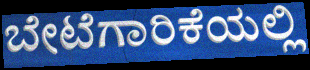
ಬೇಟೆಗಾರಿಕೆಯಲ್ಲಿ